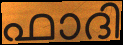
ഫാദി